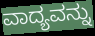
ವಾದ್ಯವನ್ನು